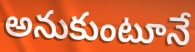
అనుకుంటూనే